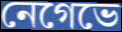
নেগেভে